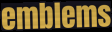
emblems